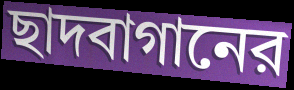
ছাদবাগানের